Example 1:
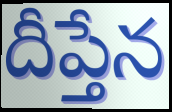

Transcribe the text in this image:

దీప్తేన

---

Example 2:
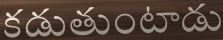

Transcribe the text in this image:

కడుతుంటాడు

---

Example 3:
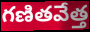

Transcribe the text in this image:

గణితవేత్త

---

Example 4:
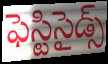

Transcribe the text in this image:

ఫెస్టిసైడ్స్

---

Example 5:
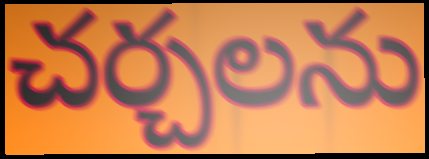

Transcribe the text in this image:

చర్చలను